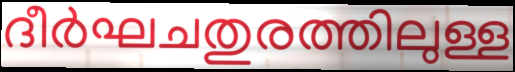
ദീർഘചതുരത്തിലുള്ള